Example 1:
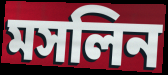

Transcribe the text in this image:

মসলিন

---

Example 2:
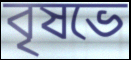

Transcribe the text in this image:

বৃষভে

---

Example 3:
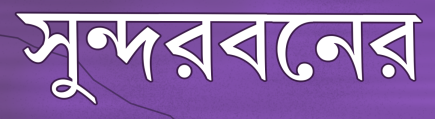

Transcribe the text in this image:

সুন্দরবনের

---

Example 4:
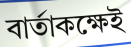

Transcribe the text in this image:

বার্তাকক্ষেই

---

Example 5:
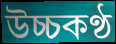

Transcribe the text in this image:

উচ্চকণ্ঠ